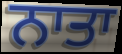
ਨਾਤਾ